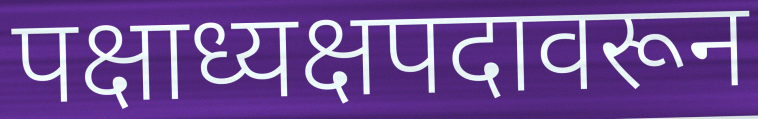
पक्षाध्यक्षपदावरून